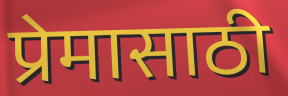
प्रेमासाठी